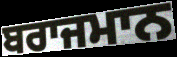
ਬਰਾਜਮਾਨ